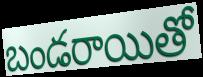
బండరాయితో